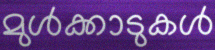
മുൾക്കാടുകൾ